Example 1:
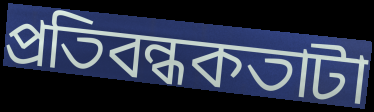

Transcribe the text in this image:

প্রতিবন্ধকতাটা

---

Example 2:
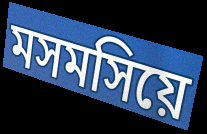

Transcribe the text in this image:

মসমসিয়ে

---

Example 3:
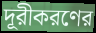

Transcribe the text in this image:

দূরীকরণের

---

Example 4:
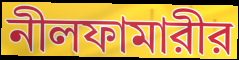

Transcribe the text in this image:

নীলফামারীর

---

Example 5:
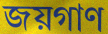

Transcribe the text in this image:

জয়গাণ